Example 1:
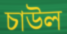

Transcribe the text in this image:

চাউল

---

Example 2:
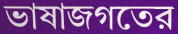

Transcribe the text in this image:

ভাষাজগতের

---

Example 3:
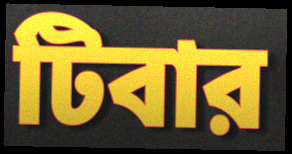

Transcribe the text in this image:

টিবার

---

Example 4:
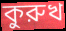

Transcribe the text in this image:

কুরুখ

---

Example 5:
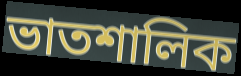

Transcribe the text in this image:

ভাতশালিক